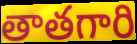
తాతగారి